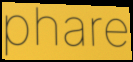
phare